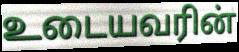
உடையவரின்